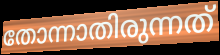
തോന്നാതിരുന്നത്